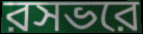
রসভরে